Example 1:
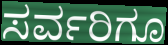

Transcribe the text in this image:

ಸರ್ವರಿಗೂ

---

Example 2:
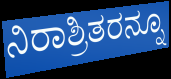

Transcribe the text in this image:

ನಿರಾಶ್ರಿತರನ್ನೂ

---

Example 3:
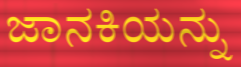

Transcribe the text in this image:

ಜಾನಕಿಯನ್ನು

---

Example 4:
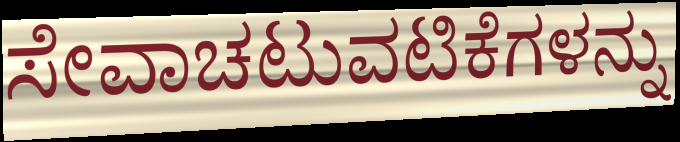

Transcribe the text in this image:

ಸೇವಾಚಟುವಟಿಕೆಗಳನ್ನು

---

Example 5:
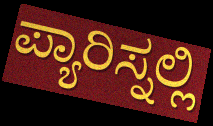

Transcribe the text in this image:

ಪ್ಯಾರಿಸ್ನಲ್ಲಿ